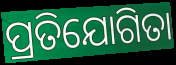
ପ୍ରତିଯୋଗିତା